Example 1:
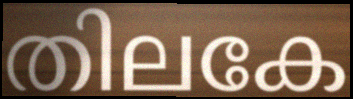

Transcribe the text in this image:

തിലകേ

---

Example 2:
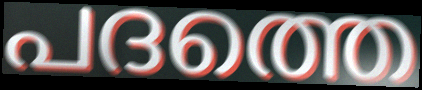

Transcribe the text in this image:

പദത്തെ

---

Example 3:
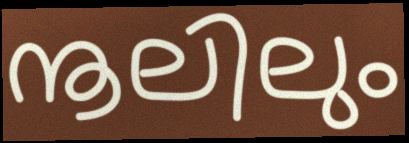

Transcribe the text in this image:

നൂലിലും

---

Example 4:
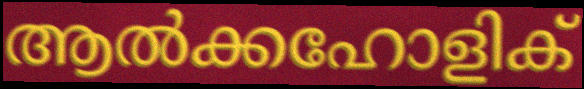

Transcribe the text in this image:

ആൽക്കഹോളിക്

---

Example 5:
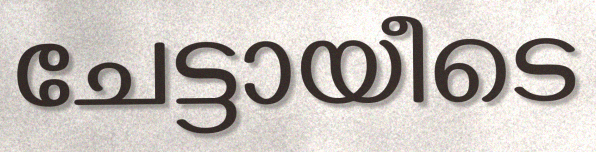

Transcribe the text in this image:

ചേട്ടായീടെ